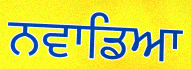
ਨਵਾਡਿਆ